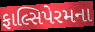
ફાલ્સિપેરમના